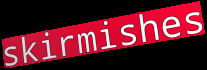
skirmishes